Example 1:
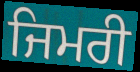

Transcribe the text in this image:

ਜਿਮਰੀ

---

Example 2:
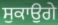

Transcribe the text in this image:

ਸੁਕਾਉਗੇ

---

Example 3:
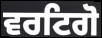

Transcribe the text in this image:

ਵਰਟਿਗੋ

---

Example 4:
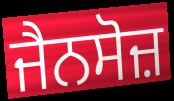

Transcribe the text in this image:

ਜੈਨਸੋਜ਼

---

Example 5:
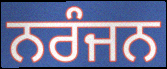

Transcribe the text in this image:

ਨਰੰਜਨ